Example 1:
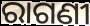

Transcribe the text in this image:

ରାଗଣୀ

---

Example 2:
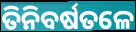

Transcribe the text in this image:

ତିନିବର୍ଷତଳେ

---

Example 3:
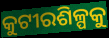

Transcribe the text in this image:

କୁଟୀରଶିଳ୍ପକୁ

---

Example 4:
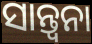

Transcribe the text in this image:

ସାନ୍ତ୍ୱନା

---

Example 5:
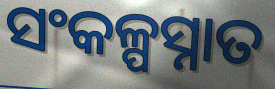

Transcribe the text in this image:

ସଂକଳ୍ପସ୍ନାତ